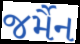
જર્મૈન